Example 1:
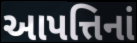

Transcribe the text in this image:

આપત્તિનાં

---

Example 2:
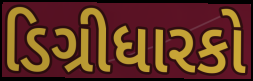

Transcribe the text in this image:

ડિગ્રીધારકો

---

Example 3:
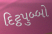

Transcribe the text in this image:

દિટ્ઠપુબ્બો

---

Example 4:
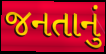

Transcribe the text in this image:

જનતાનું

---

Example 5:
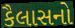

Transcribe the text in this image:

કૈલાસનો